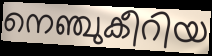
നെഞ്ചുകീറിയ